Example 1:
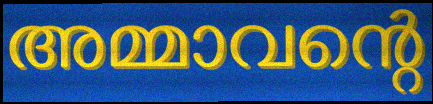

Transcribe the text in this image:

അമ്മാവന്റെ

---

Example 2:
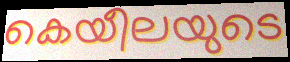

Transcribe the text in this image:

കെയീലയുടെ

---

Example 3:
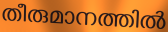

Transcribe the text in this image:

തീരുമാനത്തിൽ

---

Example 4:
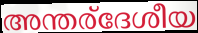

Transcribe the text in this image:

അന്തര്ദേശീയ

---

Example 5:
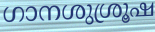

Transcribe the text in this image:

ഗാനശുശ്രൂഷ